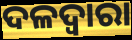
ଦଳଦ୍ୱାରା